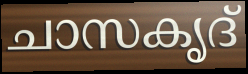
ചാസകൃദ്